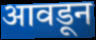
आवडून